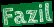
Fazil